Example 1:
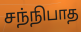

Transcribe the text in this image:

சந்நிபாத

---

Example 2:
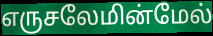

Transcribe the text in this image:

எருசலேமின்மேல்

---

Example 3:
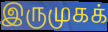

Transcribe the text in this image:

இருமுகக்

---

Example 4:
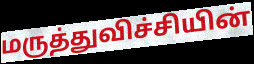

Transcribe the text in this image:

மருத்துவிச்சியின்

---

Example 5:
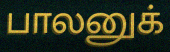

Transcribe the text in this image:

பாலனுக்